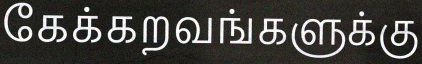
கேக்கறவங்களுக்கு